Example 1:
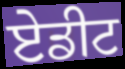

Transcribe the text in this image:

ਏਡੀਟ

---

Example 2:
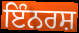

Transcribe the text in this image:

ਇੰਨਰਸ਼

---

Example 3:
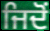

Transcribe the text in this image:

ਜਿਦੋਂ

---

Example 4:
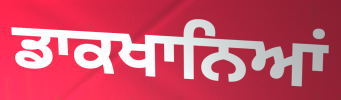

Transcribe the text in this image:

ਡਾਕਖਾਨਿਆਂ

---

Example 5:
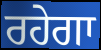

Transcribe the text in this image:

ਰਹੇਗਾ